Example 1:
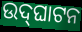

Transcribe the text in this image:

ଉଦ୍‍ଘାଟନ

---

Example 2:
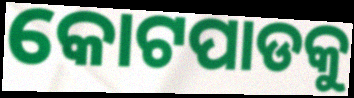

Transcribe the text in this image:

କୋଟପାଡକୁ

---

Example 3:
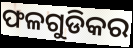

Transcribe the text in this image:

ଫଳଗୁଡିକର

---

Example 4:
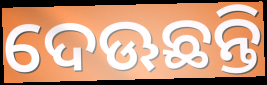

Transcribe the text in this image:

ଦେଊଛନ୍ତି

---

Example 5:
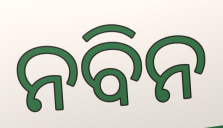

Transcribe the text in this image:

ନବିନ